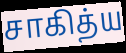
சாகித்ய